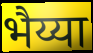
भैय्या